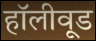
हॉलीवूड